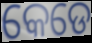
କେଡେ